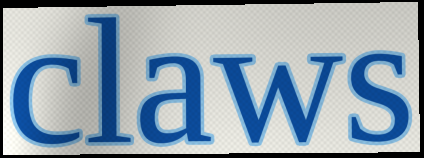
claws